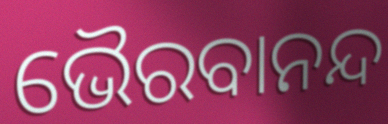
ଭୈରବାନନ୍ଦ